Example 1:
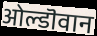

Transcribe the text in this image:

ओल्डॊवान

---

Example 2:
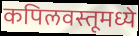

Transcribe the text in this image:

कपिलवस्तूमध्ये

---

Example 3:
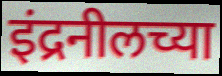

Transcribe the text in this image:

इंद्रनीलच्या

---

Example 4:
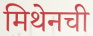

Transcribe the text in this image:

मिथेनची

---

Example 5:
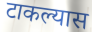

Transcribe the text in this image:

टाकल्यास